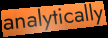
analytically